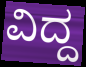
ವಿದ್ದ